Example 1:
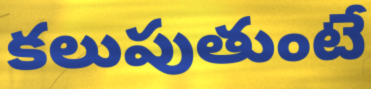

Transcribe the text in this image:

కలుపుతుంటే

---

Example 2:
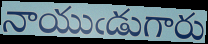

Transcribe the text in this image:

నాయుఁడుగారు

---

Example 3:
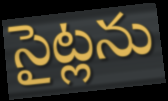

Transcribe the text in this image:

సైట్లను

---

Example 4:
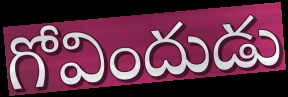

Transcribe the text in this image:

గోవిందుడు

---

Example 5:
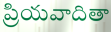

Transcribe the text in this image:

ప్రియవాదితా